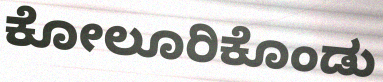
ಕೋಲೂರಿಕೊಂಡು